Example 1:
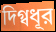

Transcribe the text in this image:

দিগ্বধূর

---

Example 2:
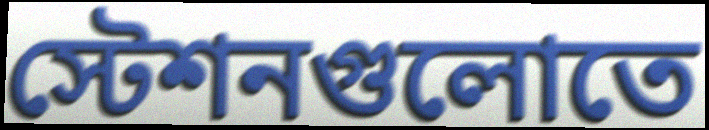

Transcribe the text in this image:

স্টেশনগুলোতে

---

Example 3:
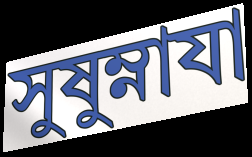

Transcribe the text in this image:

সুষুম্নাযা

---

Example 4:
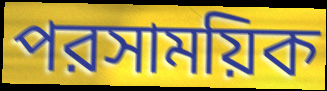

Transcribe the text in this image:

পরসাময়িক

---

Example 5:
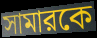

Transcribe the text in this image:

সামারকে